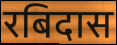
रबिदास